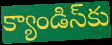
క్యాండిస్‌కు